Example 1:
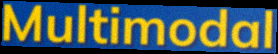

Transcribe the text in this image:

Multimodal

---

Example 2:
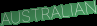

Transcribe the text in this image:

AUSTRALIAN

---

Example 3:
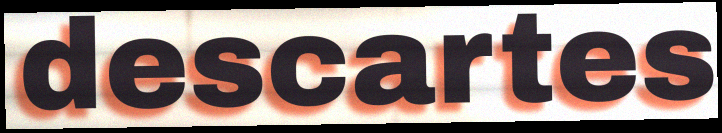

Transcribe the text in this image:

descartes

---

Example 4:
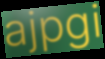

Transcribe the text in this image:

ajpgi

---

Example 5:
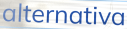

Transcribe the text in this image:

alternativa